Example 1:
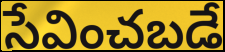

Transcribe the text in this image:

సేవించబడే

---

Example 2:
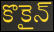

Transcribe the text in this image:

కొకైన్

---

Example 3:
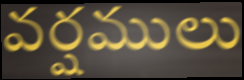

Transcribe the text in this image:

వర్షములు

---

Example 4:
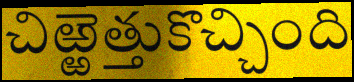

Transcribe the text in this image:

చిఱ్ఱెత్తుకొచ్చింది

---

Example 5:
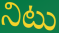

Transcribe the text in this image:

నిటు